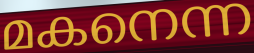
മകനെന്ന